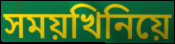
সময়খিনিয়ে